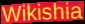
Wikishia